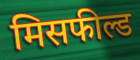
मिसफील्ड